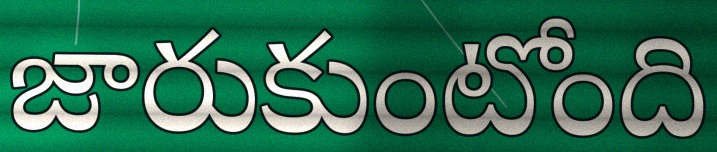
జారుకుంటోంది